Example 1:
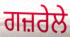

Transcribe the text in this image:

ਗਜ਼ਰੇਲੇ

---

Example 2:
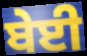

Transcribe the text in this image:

ਬੇਈ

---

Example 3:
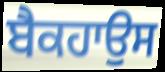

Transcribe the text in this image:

ਬੈਕਹਾਉਸ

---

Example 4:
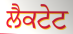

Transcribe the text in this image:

ਲੈਕਟੇਟ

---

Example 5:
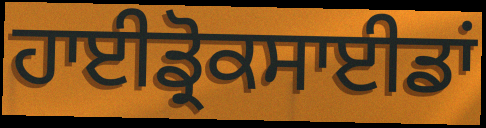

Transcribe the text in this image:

ਹਾਈਡ੍ਰੋਕਸਾਈਡਾਂ